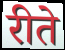
रीते